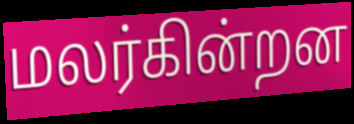
மலர்கின்றன